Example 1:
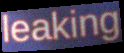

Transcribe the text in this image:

leaking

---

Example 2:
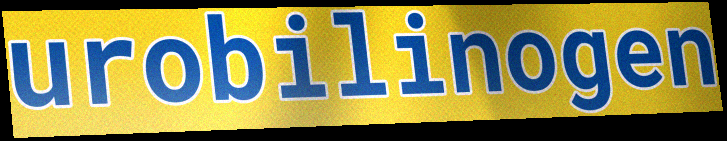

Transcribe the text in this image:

urobilinogen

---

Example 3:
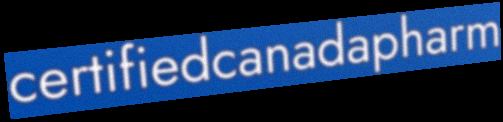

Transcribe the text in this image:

certifiedcanadapharm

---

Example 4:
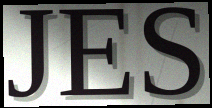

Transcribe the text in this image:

JES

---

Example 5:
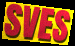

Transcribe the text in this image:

SVES